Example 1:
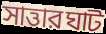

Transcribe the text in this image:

সাত্তারঘাট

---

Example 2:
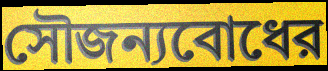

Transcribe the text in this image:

সৌজন্যবোধের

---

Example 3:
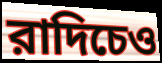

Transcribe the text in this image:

রাদিচেও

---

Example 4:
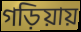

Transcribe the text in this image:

গড়িয়ায়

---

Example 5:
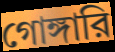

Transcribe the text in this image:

গোঙ্গারি